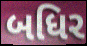
બધિર